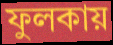
ফুলকায়